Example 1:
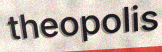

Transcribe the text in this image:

theopolis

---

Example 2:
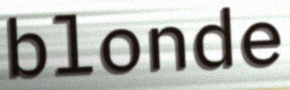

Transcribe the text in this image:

blonde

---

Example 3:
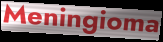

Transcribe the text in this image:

Meningioma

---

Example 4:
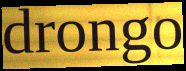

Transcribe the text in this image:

drongo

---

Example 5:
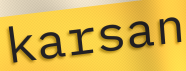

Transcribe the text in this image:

karsan